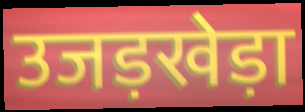
उजड़खेड़ा